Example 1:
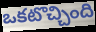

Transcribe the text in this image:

ఒకటొచ్చింది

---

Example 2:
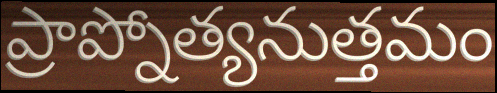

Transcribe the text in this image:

ప్రాప్నోత్యనుత్తమం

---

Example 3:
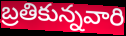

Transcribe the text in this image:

బ్రతికున్నవారి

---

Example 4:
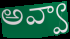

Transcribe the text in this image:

అవ్వా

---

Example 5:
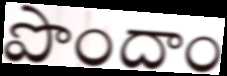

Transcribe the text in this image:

పొందాం